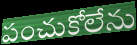
పంచుకోలేను